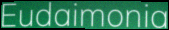
Eudaimonia